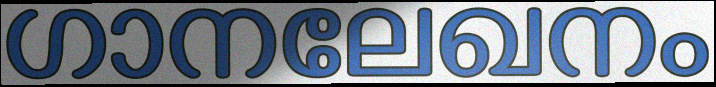
ഗാനലേഖനം